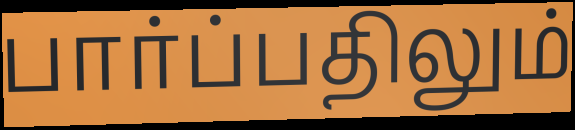
பார்ப்பதிலும்